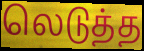
லெடுத்த